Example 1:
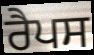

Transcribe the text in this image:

ਰੈਪਸ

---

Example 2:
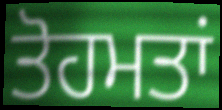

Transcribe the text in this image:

ਤੋਹਮਤਾਂ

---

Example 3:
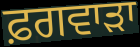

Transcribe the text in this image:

ਫ਼ਗਵਾੜਾ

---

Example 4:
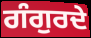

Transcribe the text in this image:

ਗੰਗੁਰਦੇ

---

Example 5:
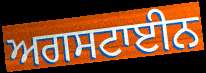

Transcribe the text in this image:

ਅਗਸਟਾਈਨ